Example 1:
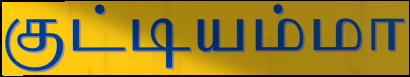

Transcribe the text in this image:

குட்டியம்மா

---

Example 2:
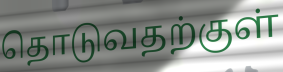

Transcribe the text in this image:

தொடுவதற்குள்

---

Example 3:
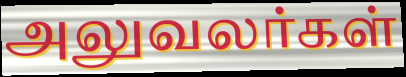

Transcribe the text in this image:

அலுவலர்கள்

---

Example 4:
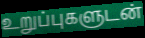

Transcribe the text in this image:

உறுப்புகளுடன்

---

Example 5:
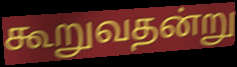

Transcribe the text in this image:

கூறுவதன்று